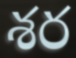
శర